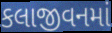
કલાજીવનમાં